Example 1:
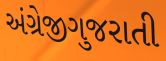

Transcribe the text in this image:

અંગ્રેજીગુજરાતી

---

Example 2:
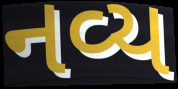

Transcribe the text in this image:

નવ્ય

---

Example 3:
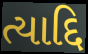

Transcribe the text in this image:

ત્યાદ્દિ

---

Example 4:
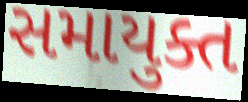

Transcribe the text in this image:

સમાયુક્ત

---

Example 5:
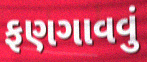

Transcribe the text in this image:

ફણગાવવું